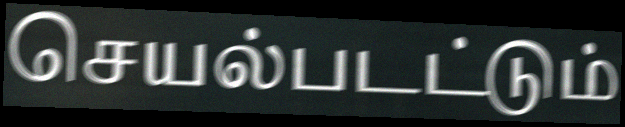
செயல்படட்டும்